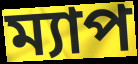
ম্যাপ